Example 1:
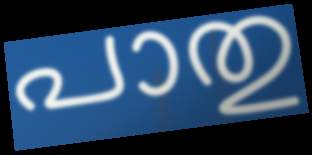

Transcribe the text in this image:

പാതു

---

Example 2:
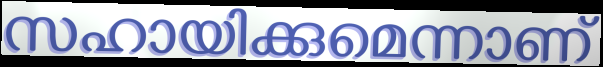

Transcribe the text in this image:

സഹായിക്കുമെന്നാണ്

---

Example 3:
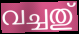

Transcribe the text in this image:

വച്ചതു്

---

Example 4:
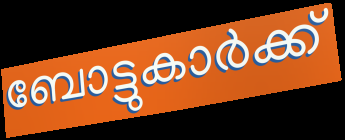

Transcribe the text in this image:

ബോട്ടുകാർക്ക്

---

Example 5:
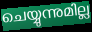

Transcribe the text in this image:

ചെയ്യുന്നുമില്ല